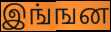
இங்ஙன